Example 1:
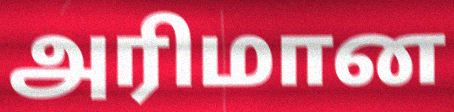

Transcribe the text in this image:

அரிமான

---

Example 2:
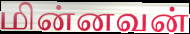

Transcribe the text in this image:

மின்னவன்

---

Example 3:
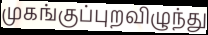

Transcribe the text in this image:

முகங்குப்புறவிழுந்து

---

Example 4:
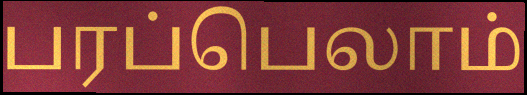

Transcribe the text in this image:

பரப்பெலாம்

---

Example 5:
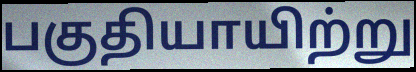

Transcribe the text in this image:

பகுதியாயிற்று